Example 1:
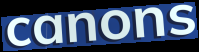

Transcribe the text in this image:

canons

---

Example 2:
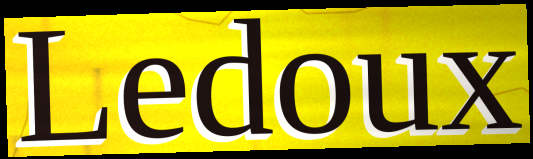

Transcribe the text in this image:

Ledoux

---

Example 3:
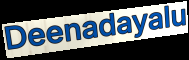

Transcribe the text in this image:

Deenadayalu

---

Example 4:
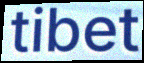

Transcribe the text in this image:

tibet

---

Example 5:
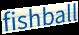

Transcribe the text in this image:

fishball